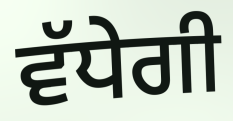
ਵੱਧੇਗੀ